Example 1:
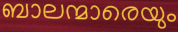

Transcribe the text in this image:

ബാലന്മാരെയും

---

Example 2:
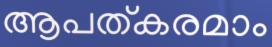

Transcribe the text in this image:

ആപത്കരമാം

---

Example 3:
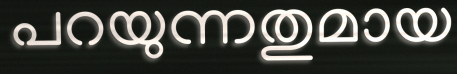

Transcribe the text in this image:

പറയുന്നതുമായ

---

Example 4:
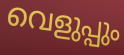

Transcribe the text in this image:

വെളുപ്പും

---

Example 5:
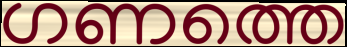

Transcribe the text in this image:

ഗണത്തെ